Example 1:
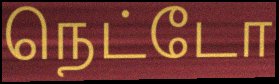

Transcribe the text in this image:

நெட்டோ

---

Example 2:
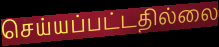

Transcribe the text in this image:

செய்யப்பட்டதில்லை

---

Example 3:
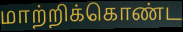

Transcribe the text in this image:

மாற்றிக்கொண்ட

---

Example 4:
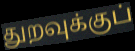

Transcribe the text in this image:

துறவுக்குப்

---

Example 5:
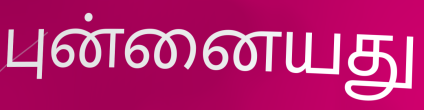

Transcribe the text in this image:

புன்னையது